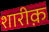
शारीक़